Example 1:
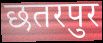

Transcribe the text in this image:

छतरपुर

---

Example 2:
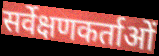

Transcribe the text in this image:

सर्वेक्षणकर्ताओं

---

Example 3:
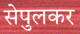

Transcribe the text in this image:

सेपुलकर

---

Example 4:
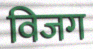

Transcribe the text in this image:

विजग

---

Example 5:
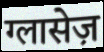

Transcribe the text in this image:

ग्लासेज़